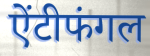
ऐंटीफंगल